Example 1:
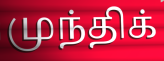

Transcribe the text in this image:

முந்திக்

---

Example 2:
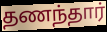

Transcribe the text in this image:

தணந்தார்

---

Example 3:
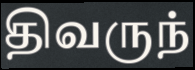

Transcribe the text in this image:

திவருந்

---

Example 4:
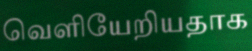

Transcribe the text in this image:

வெளியேறியதாக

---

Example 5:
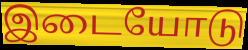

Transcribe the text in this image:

இடையோடு